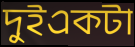
দুইএকটা